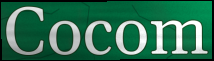
Cocom